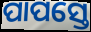
ପାପସ୍ତେ